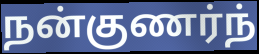
நன்குணர்ந்